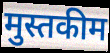
मुस्तकीम